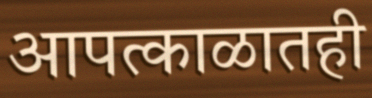
आपत्काळातही